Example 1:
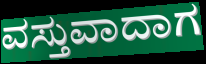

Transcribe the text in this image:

ವಸ್ತುವಾದಾಗ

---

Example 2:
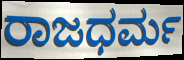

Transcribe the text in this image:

ರಾಜಧರ್ಮ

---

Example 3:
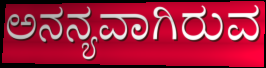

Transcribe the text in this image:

ಅನನ್ಯವಾಗಿರುವ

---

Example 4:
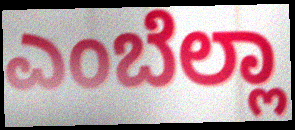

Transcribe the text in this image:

ಎಂಬೆಲ್ಲಾ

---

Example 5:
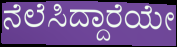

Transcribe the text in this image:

ನೆಲೆಸಿದ್ದಾರೆಯೇ